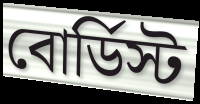
বোর্ডিস্ট